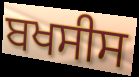
ਬਖਸੀਸ